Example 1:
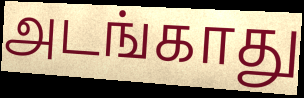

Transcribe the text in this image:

அடங்காது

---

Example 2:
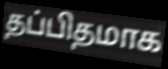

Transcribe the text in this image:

தப்பிதமாக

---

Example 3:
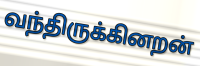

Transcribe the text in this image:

வந்திருக்கினறன்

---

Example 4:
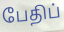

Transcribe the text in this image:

பேதிப்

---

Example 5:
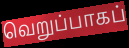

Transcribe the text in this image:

வெறுப்பாகப்